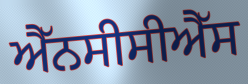
ਐੱਨਸੀਸੀਐੱਸ